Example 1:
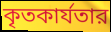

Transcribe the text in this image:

কৃতকার্যতার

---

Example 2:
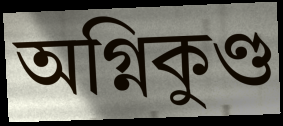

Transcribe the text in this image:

অগ্নিকুণ্ড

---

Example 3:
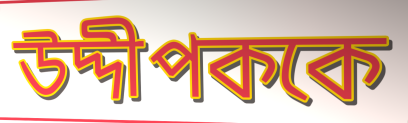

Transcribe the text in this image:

উদ্দীপককে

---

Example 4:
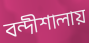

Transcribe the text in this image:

বন্দীশালায়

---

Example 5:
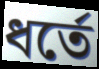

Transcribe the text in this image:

ধর্তে